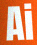
Ai